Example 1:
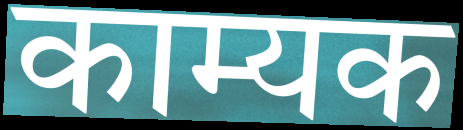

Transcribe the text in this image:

काम्यक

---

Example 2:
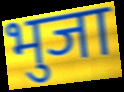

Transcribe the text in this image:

भुजा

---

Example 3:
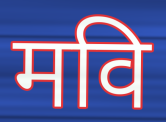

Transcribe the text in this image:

मवि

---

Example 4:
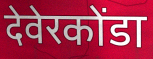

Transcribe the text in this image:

देवेरकोंडा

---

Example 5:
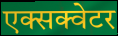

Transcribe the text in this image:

एक्सक्वेटर